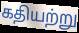
கதியற்று